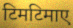
टिमटिमाए